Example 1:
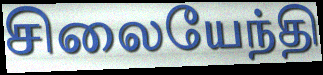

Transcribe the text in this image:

சிலையேந்தி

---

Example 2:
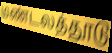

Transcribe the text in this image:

மண்டலத்தூடு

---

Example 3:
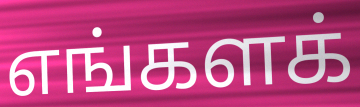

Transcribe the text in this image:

எங்களக்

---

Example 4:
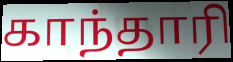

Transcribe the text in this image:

காந்தாரி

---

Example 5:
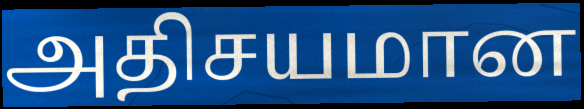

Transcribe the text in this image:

அதிசயமான